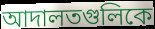
আদালতগুলিকে